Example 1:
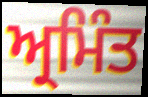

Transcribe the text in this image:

ਅ੍ਰਮਿੰਤ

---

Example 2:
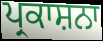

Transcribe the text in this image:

ਪ੍ਰਕਾਸ਼ਨਾ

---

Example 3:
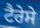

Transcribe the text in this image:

ਟੈਰੇਸੇ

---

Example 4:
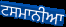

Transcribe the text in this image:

ਟਸਮਾਨੀਆ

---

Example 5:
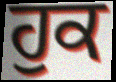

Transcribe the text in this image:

ਹੁਕ